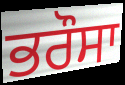
ਭਰੌਸਾ